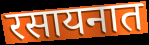
रसायनात